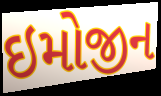
ઇમોજીન